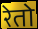
रेतो